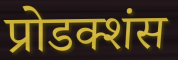
प्रोडक्शंस